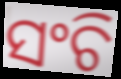
ସଂଚି